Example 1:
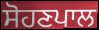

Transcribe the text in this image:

ਸੋਹਣਪਾਲ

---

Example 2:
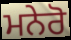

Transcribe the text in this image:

ਮਨੇਰੋ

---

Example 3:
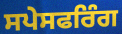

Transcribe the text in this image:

ਸਪੇਸਫਰਿੰਗ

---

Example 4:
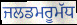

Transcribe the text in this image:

ਜਲਡਮਰੂਮੱਧ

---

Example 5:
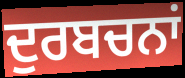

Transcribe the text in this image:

ਦੁਰਬਚਨਾਂ